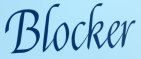
Blocker